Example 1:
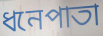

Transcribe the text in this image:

ধনেপাতা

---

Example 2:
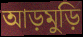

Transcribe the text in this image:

আড়মুড়ি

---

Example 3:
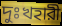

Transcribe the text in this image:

দুঃখহারী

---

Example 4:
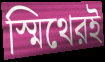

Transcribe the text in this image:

স্মিথেরই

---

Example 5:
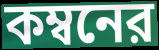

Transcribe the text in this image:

কম্বনের